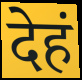
देहं